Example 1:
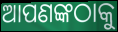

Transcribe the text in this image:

ଆପଣଙ୍କଠାକୁ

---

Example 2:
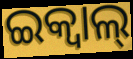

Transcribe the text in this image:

ଇକ୍ୱାଲ୍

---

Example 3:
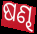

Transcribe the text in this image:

ଷଣ୍ଢ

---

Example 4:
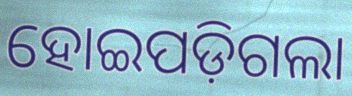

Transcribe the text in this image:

ହୋଇପଡ଼ିଗଲା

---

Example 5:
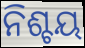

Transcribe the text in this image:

ନିଶ୍ଚୟ